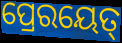
ପ୍ରେରୟେତ୍